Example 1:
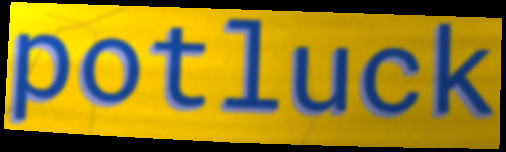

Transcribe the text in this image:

potluck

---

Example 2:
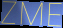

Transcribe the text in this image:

ZME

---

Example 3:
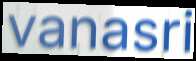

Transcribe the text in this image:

vanasri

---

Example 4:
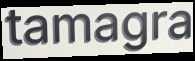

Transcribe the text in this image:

tamagra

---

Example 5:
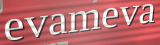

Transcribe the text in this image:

evameva